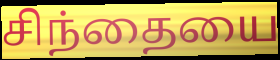
சிந்தையை